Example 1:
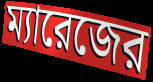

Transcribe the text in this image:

ম্যারেজের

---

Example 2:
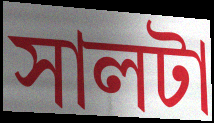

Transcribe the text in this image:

সালটা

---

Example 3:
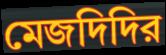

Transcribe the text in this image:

মেজদিদির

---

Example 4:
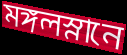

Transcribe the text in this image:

মঙ্গলস্নানে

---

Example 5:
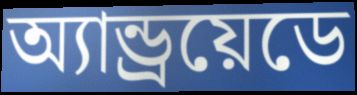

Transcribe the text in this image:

অ্যান্ড্রয়েডে